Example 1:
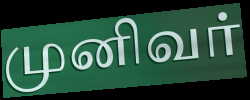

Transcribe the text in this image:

முனிவர்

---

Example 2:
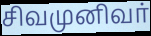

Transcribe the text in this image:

சிவமுனிவர்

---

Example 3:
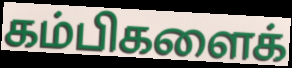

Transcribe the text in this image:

கம்பிகளைக்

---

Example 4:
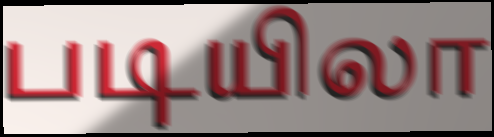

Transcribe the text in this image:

படியிலா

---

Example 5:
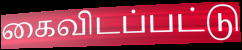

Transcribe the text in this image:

கைவிடப்பட்டு